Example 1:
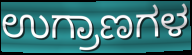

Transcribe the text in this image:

ಉಗ್ರಾಣಗಳ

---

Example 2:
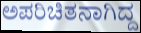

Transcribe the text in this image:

ಅಪರಿಚಿತನಾಗಿದ್ದ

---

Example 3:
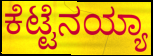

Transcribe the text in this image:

ಕೆಟ್ಟೆನಯ್ಯಾ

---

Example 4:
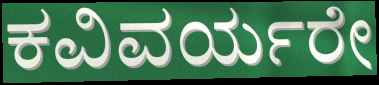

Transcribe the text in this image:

ಕವಿವರ್ಯರೇ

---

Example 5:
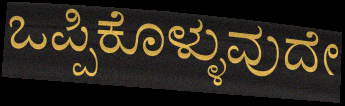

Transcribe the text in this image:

ಒಪ್ಪಿಕೊಳ್ಳುವುದೇ